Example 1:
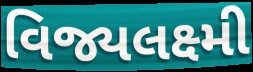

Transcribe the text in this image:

વિજ્યલક્ષ્મી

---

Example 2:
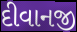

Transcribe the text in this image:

દીવાનજી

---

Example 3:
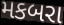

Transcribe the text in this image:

મકબરા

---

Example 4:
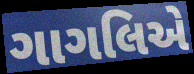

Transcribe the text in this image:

ગાગલિએ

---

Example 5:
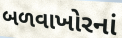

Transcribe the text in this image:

બળવાખોરનાં